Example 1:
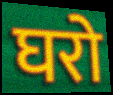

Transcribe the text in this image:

घरो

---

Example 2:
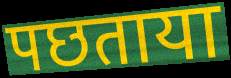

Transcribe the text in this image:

पछताया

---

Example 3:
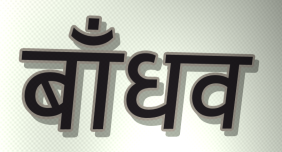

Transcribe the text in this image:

बाँधव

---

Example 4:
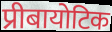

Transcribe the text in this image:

प्रीबायोटिक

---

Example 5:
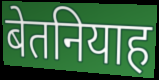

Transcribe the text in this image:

बेतनियाह